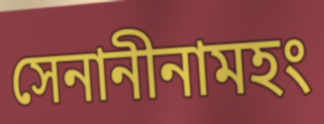
সেনানীনামহং